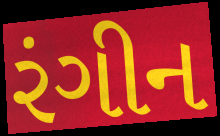
રંગીન